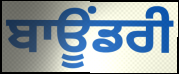
ਬਾਊਂਡਰੀ